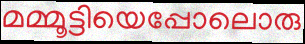
മമ്മൂട്ടിയെപ്പോലൊരു